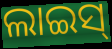
ଲାଇସ୍